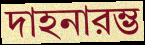
দাহনারম্ভ